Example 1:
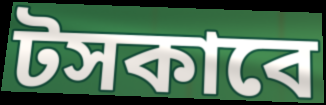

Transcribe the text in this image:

টসকাবে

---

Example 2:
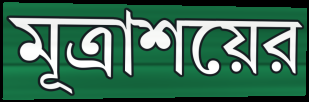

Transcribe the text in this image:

মূত্রাশয়ের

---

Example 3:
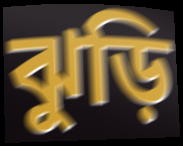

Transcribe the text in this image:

ঝুড়ি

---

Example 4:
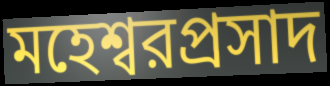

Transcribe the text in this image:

মহেশ্বরপ্রসাদ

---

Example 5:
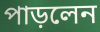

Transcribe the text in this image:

পাড়লেন